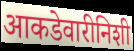
आकडेवारीनिशी